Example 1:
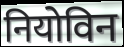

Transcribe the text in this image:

नियोविन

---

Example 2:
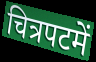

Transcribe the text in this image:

चित्रपटमें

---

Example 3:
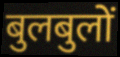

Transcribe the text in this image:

बुलबुलों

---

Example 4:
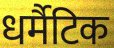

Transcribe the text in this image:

धर्मैटिक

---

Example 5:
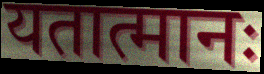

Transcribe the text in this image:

यतात्मानः